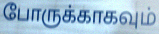
போருக்காகவும்